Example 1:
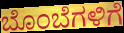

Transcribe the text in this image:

ಬೊಂಬೆಗಳಿಗೆ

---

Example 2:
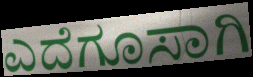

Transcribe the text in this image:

ಎದೆಗೂಸಾಗಿ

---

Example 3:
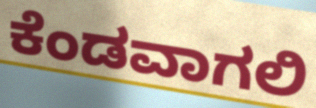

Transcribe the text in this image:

ಕೆಂಡವಾಗಲಿ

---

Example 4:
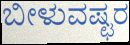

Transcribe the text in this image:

ಬೀಳುವಷ್ಟರ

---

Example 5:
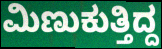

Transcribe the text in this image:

ಮಿಣುಕುತ್ತಿದ್ದ